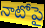
నాటోపై